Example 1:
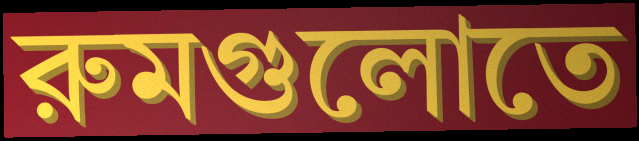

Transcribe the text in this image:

রুমগুলোতে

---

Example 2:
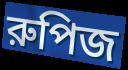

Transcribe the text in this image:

রুপিজ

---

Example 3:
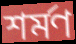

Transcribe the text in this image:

শর্মণ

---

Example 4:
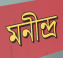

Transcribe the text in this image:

মনীন্দ্র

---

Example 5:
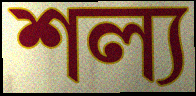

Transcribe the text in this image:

শল্য